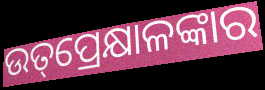
ଉତ୍‌ପ୍ରେକ୍ଷାଳଙ୍କାର